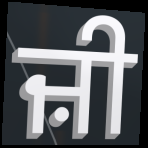
ਜ਼ੀ